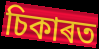
চিকাৰত